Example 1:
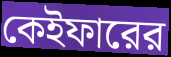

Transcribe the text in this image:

কেইফারের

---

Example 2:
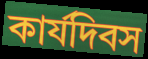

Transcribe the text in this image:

কার্যদিবস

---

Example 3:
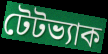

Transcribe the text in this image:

টেটভ্যাক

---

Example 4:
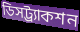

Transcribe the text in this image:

ডিসট্র্যাকশন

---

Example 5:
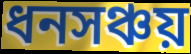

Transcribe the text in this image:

ধনসঞ্চয়